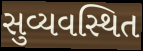
સુવ્યવસ્થિત